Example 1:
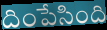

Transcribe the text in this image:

దింపేసింది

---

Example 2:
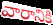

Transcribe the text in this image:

వారానికి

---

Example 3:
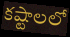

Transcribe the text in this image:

కష్టాలలో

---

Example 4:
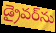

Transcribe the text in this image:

డ్రైవర్‌ను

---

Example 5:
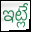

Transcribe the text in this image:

ఇట్లే